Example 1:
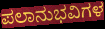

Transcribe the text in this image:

ಪಲಾನುಭವಿಗಳ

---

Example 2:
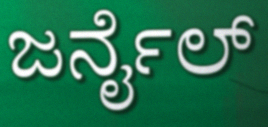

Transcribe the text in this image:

ಜರ್ನೈಲ್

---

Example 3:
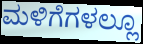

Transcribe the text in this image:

ಮಳಿಗೆಗಳಲ್ಲೂ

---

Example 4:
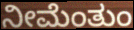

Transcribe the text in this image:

ನೀಮೆಂತುಂ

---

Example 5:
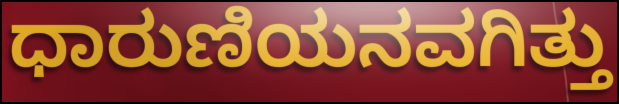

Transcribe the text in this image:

ಧಾರುಣಿಯನವಗಿತ್ತು